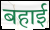
बहाई